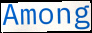
Among